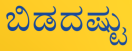
ಬಿಡದಷ್ಟು